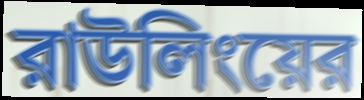
রাউলিংয়ের